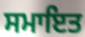
ਸਮਾਇਤ